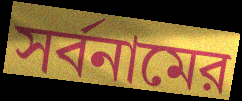
সর্বনামের